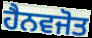
ਹੈਨਵਜੋਤ